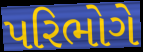
પરિભોગે